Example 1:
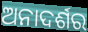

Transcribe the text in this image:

ଅନାଦର୍ଶର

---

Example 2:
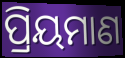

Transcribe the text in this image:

ପ୍ରିୟମାଣ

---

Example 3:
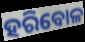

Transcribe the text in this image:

ହରିବୋଳ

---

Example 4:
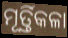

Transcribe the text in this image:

ମୂର୍ତ୍ତିକଳା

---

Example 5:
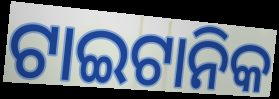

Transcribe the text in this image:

ଟାଇଟାନିକ